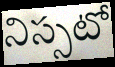
నిస్సటో